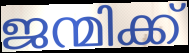
ജന്മിക്ക്